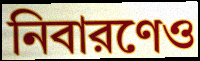
নিবারণেও